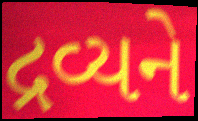
દ્રવ્યને